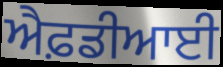
ਐਫ਼ਡੀਆਈ